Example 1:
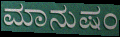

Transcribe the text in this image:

ಮಾನುಷಂ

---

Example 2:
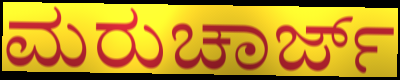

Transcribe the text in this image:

ಮರುಚಾರ್ಜ್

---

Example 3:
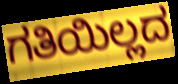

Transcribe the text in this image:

ಗತಿಯಿಲ್ಲದ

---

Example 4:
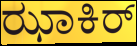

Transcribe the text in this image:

ಝಾಕಿರ್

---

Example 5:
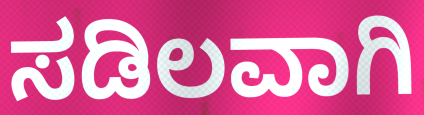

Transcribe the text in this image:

ಸಡಿಲವಾಗಿ